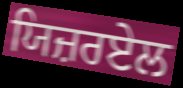
ਯਿਜ਼ਰਏਲ